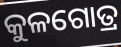
କୁଳଗୋତ୍ର